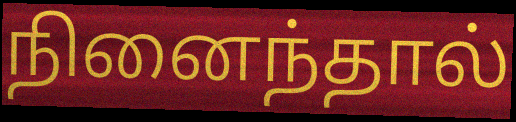
நினைந்தால்